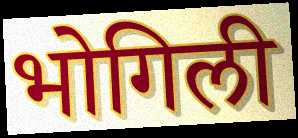
भोगिली